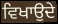
ਵਿਖਾਉਦੇ